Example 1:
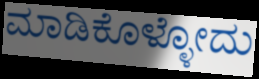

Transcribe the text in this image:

ಮಾಡಿಕೊಳ್ಳೋದು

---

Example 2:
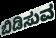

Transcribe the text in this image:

ಬಿಡಿಸುವ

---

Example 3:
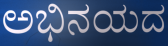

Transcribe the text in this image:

ಅಭಿನಯದ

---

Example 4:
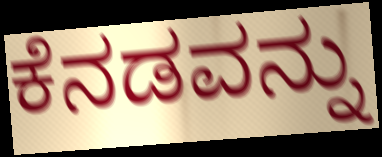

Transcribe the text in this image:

ಕೆನಡವನ್ನು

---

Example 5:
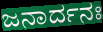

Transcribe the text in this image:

ಜನಾರ್ದನಃ